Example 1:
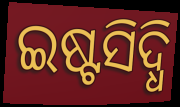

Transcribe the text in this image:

ଇଷ୍ଟସିଦ୍ଧି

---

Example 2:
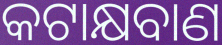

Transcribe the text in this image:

କଟାକ୍ଷବାଣ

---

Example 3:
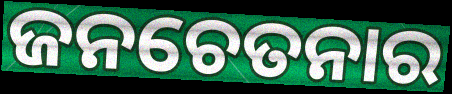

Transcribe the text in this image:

ଜନଚେତନାର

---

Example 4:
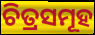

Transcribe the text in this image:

ଚିତ୍ରସମୂହ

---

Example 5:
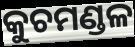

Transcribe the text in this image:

କୁଚମଣ୍ଡଳ